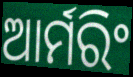
ଆର୍ମରିଂ